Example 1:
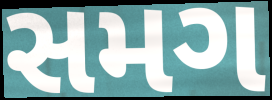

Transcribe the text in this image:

સમગ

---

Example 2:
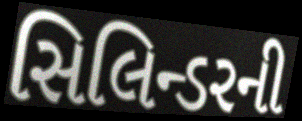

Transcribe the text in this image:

સિલિન્ડરની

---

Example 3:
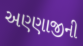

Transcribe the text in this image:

અણ્ણાજીની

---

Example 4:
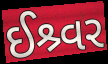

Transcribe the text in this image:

ઈશ્ર્વર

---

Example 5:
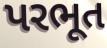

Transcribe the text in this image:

પરભૂત